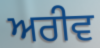
ਅਰੀਵ